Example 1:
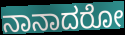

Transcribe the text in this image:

ನಾನಾದರೋ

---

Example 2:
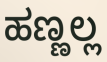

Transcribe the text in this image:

ಹಣ್ಣಲ್ಲ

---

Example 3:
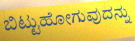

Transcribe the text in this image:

ಬಿಟ್ಟುಹೋಗುವುದನ್ನು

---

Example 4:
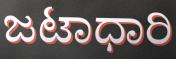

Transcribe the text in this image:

ಜಟಾಧಾರಿ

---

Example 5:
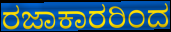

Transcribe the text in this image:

ರಜಾಕಾರರಿಂದ